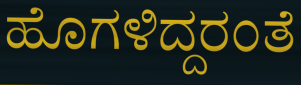
ಹೊಗಳಿದ್ದರಂತೆ